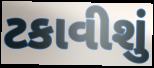
ટકાવીશું